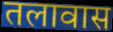
तलावास